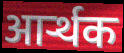
आर्र्थक